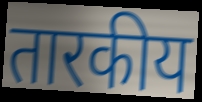
तारकीय